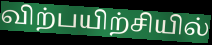
விற்பயிற்சியில்